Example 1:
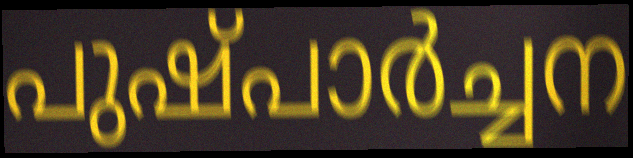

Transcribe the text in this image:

പുഷ്പാർച്ചന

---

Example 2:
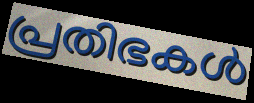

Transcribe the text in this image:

പ്രതിഭകൾ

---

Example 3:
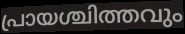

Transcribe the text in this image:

പ്രായശ്ചിത്തവും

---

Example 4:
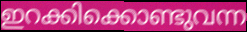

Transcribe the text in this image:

ഇറക്കിക്കൊണ്ടുവന്ന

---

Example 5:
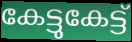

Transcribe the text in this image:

കേട്ടുകേട്ട്